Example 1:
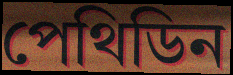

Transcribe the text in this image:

পেথিডিন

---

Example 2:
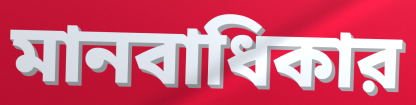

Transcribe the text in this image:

মানবাধিকার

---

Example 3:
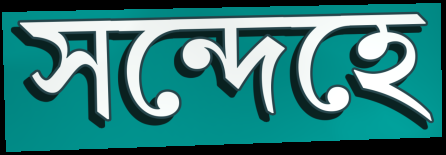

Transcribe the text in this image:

সন্দেহে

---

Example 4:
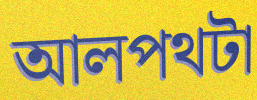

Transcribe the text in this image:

আলপথটা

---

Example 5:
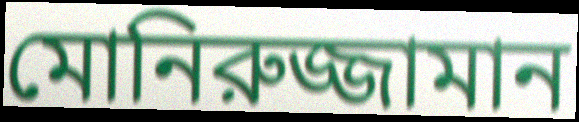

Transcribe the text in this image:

মোনিরুজ্জামান